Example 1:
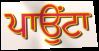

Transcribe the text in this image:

ਪਾਉਂਟਾ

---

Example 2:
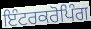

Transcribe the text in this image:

ਇੰਟਰਕਰੋਪਿੰਗ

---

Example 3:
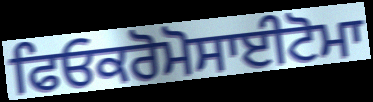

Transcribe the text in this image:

ਫਿਓਕਰੋਮੋਸਾਈਟੋਮਾ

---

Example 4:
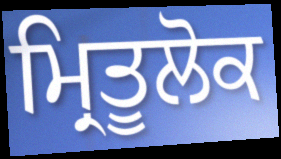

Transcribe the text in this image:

ਮ੍ਰਿਤੂਲੋਕ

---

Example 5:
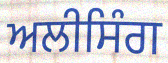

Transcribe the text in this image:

ਅਲੀਸਿੰਗ